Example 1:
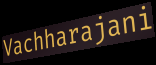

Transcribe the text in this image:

Vachharajani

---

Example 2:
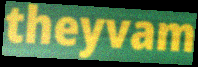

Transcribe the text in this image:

theyvam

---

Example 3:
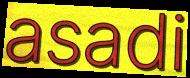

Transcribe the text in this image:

asadi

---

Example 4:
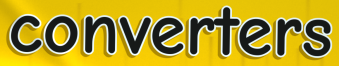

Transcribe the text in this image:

converters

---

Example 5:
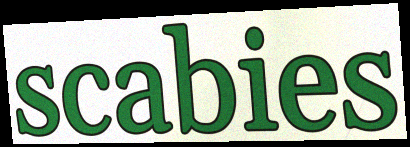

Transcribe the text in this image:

scabies